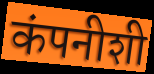
कंपनीशी